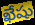
ఖేషు